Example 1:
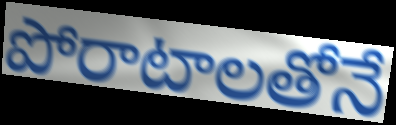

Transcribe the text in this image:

పోరాటాలతోనే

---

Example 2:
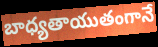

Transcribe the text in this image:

బాధ్యతాయుతంగానే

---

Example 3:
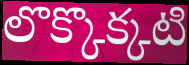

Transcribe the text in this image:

లొక్కొక్కటి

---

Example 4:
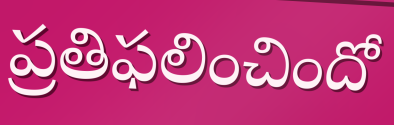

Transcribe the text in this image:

ప్రతిఫలించిందో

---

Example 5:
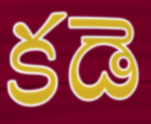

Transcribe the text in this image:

కడె